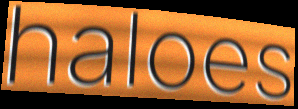
haloes